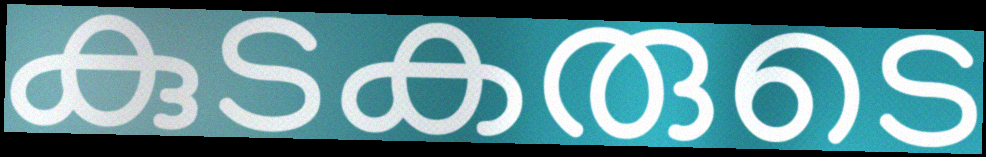
കുടകരുടെ